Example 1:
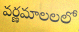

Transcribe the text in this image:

వర్ణమాలలలో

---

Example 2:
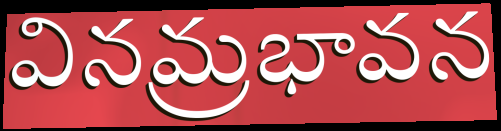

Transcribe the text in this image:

వినమ్రభావన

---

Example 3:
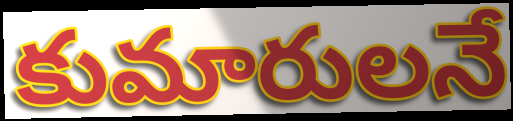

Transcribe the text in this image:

కుమారులనే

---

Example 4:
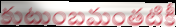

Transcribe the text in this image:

కుటుంబమంతటికీ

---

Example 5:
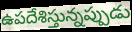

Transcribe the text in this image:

ఉపదేశిస్తున్నప్పుడు